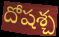
దోషశ్చ